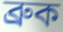
ব্রুক